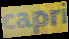
capri